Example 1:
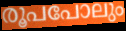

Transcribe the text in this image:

രൂപപോലും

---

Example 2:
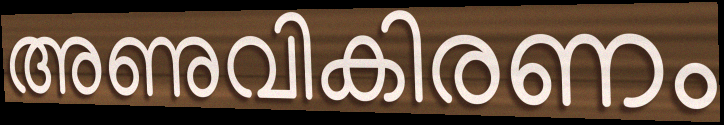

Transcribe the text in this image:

അണുവികിരണം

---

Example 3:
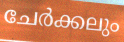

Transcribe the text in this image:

ചേർക്കലും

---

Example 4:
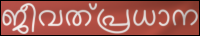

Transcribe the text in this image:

ജീവത്പ്രധാന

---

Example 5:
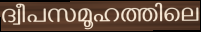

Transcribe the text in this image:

ദ്വീപസമൂഹത്തിലെ